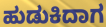
ಹುಡುಕಿದಾಗ